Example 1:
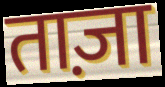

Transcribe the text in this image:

ताज़ा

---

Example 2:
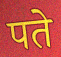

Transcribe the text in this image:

पते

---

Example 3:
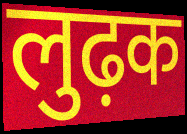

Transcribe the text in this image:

लुढ़क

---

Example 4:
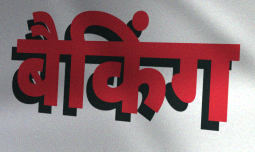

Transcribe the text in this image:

बैकिंग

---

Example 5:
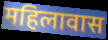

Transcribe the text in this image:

महिलावास